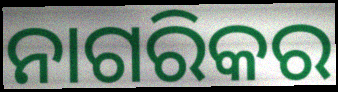
ନାଗରିକର